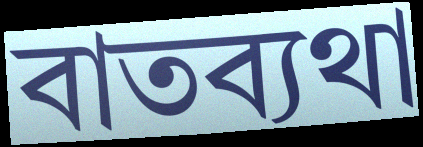
বাতব্যথা